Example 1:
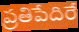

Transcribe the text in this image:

ప్రతిపేదిరే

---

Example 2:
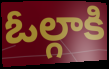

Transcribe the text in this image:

ఓల్గాకి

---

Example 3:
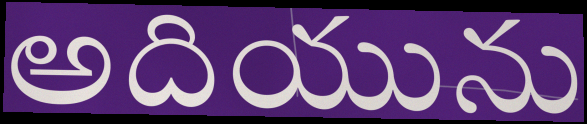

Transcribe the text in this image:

అదియును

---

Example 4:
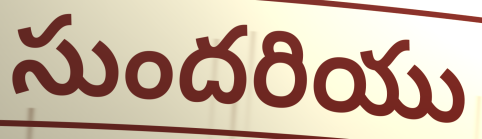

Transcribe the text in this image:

సుందరియు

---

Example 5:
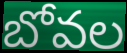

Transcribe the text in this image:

బోవల